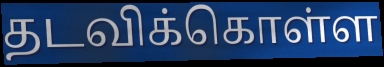
தடவிக்கொள்ள